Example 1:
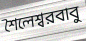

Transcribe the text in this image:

শৈলেশ্বরবাবু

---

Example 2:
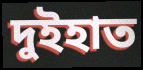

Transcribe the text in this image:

দুইহাত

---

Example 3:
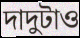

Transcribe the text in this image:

দাদুটাও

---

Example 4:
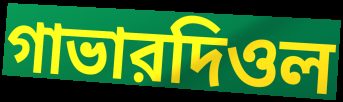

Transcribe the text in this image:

গাভারদিওল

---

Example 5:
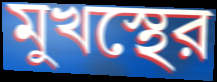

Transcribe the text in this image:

মুখস্থের